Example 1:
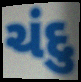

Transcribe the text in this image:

ચંદુ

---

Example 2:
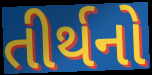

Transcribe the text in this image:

તીર્થનો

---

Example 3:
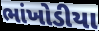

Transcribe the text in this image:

ભાંખોડીયા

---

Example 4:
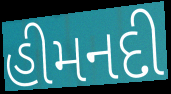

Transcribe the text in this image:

હીમનદી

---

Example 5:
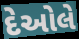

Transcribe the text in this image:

દેઓલે